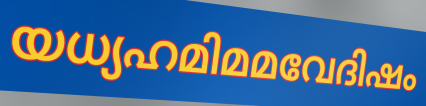
യധ്യഹമിമമവേദിഷം